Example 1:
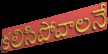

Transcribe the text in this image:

కలిసిపోవాలనే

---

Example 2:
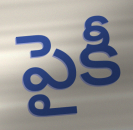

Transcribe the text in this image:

పైకీ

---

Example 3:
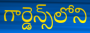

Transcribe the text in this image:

గార్డెన్స్‌లోని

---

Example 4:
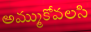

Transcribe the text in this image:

అమ్ముకోవలసి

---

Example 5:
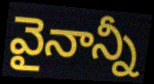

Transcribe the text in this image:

వైనాన్నీ